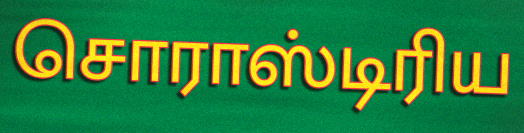
சொராஸ்டிரிய